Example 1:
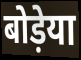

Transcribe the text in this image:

बोड़ेया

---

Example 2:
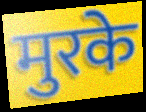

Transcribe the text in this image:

मुरके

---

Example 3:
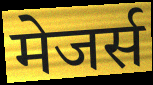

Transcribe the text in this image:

मेजर्स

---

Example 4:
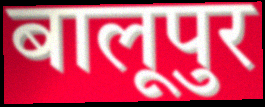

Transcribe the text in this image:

बालूपुर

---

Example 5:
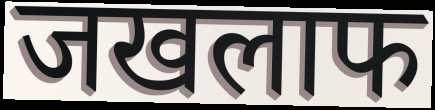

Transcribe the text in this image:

जखलाफ